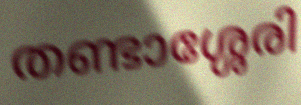
തണ്ടാശ്ശേരി